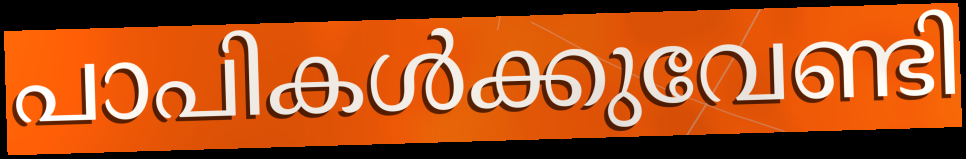
പാപികൾക്കുവേണ്ടി